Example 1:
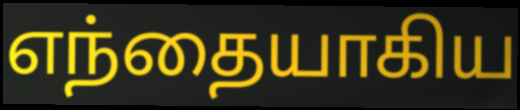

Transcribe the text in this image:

எந்தையாகிய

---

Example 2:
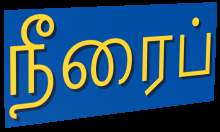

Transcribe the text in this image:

நீரைப்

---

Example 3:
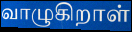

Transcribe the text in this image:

வாழுகிறாள்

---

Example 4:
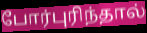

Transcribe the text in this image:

போர்புரிந்தால்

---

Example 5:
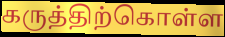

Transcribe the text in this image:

கருத்திற்கொள்ள